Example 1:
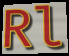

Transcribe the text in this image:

Rl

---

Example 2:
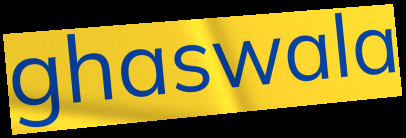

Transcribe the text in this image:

ghaswala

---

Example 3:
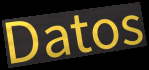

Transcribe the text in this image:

Datos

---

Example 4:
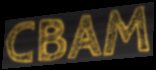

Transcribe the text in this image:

CBAM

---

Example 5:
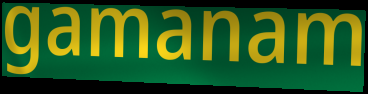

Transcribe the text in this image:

gamanam